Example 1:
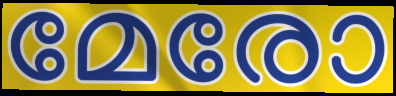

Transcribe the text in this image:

മേരോ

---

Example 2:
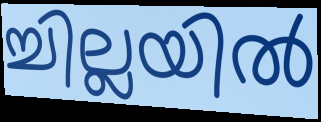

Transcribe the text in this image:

ച്ചില്ലയിൽ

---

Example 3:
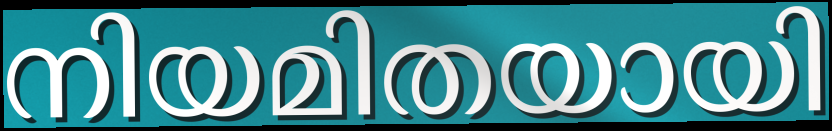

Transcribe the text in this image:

നിയമിതയായി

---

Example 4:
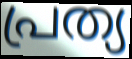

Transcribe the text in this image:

പ്രത്യ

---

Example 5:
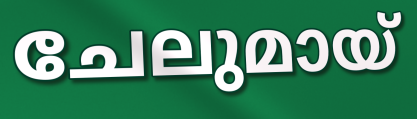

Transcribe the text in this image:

ചേലുമായ്